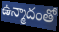
ఉన్మాదంతో